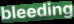
bleeding